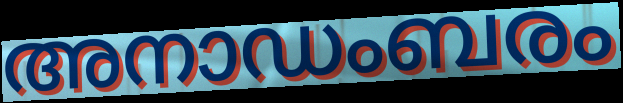
അനാഡംബരം